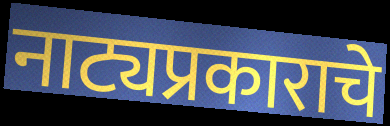
नाट्यप्रकाराचे